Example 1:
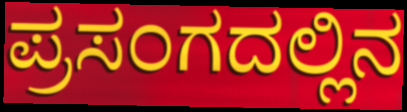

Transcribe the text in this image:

ಪ್ರಸಂಗದಲ್ಲಿನ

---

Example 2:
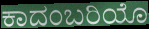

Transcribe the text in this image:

ಕಾದಂಬರಿಯೊ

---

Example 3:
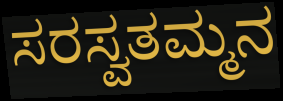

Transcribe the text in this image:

ಸರಸ್ವತಮ್ಮನ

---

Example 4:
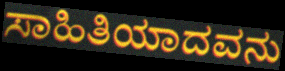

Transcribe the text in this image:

ಸಾಹಿತಿಯಾದವನು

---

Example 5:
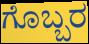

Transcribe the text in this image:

ಗೊಬ್ಬರ